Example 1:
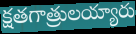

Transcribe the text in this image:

క్షతగాత్రులయ్యారు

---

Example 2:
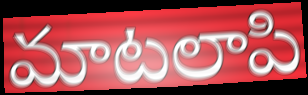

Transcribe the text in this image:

మాటలాపి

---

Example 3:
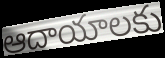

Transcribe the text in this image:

ఆదాయాలకు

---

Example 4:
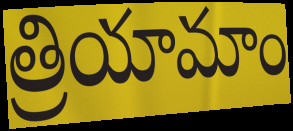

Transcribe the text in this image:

త్రియామాం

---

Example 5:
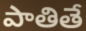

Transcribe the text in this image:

పాతితే